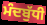
ਮੰਦਬੁੱਧੀ